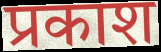
प्रकाश